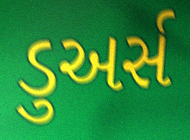
ડુઅર્સ